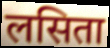
लसिता